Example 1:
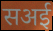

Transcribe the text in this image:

सअई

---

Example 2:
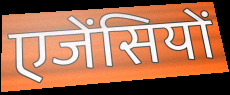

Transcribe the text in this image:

एजेंसियों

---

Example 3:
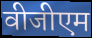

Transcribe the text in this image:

वीजीएम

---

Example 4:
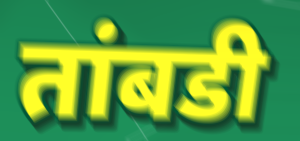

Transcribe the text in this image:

तांबडी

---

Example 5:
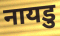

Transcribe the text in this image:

नायडु